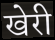
खेरी